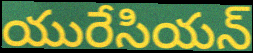
యురేసియన్